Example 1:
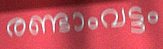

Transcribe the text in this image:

രണ്ടാംവട്ടം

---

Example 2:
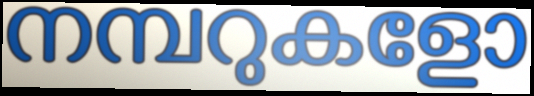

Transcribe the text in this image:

നമ്പറുകളോ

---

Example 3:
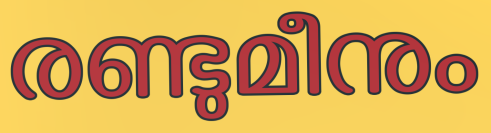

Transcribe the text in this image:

രണ്ടുമീനും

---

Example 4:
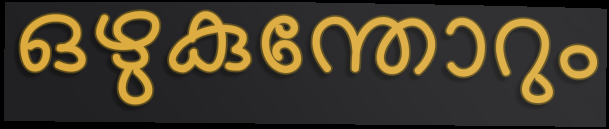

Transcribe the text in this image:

ഒഴുകുന്തോറും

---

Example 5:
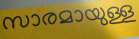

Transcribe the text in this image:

സാരമായുള്ള